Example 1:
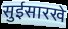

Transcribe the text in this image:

सुईसारखे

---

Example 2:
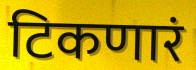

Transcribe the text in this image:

टिकणारं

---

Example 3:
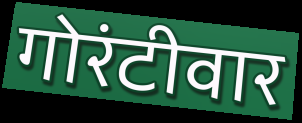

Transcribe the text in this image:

गोरंटीवार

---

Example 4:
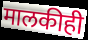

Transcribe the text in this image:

मालकीही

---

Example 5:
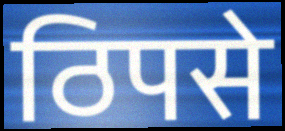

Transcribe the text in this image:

ठिपसे